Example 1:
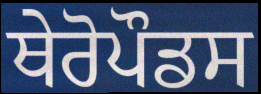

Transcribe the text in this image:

ਥੇਰੋਪੌਡਸ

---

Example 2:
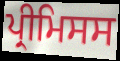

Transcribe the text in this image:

ਪ੍ਰੀਮਿਸਸ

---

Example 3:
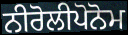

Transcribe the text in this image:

ਨੀਰੋਲੀਪੋਨੋਮ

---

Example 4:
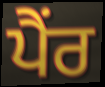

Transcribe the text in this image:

ਪੈਂਰ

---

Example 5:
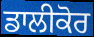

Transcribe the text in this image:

ਡਾਲੀਕੋਰ